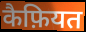
कैफ़ियत